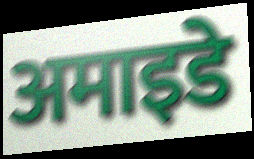
अमाइडे